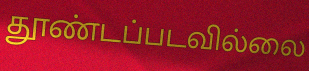
தூண்டப்படவில்லை